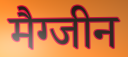
मैग्जीन